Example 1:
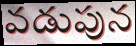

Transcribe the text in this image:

వడుపున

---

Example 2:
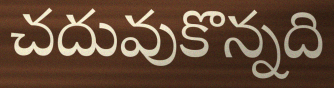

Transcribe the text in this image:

చదువుకొన్నది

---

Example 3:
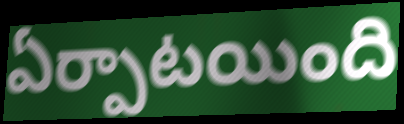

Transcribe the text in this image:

ఏర్పాటయింది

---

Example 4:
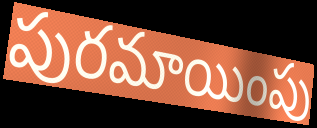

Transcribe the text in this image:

పురమాయింపు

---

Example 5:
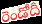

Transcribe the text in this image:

రెండోదీ